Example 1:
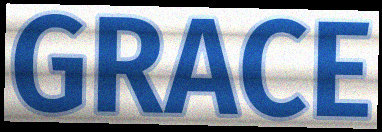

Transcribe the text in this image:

GRACE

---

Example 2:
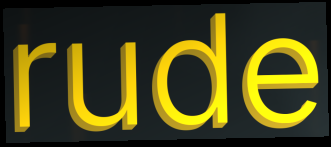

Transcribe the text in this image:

rude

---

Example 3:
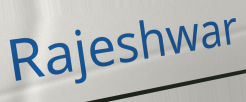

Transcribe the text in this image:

Rajeshwar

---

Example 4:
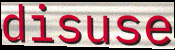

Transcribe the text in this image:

disuse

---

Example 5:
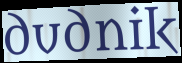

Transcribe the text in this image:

dudnik